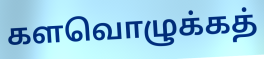
களவொழுக்கத்